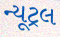
ન્યૂટ્રલ